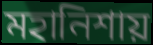
মহানিশায়